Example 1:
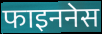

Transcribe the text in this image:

फाइननेस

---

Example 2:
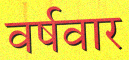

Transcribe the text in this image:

वर्षवार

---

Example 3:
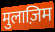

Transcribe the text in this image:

मुलाज़िम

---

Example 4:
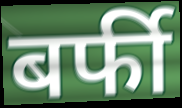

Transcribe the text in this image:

बर्फी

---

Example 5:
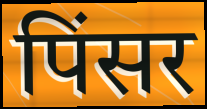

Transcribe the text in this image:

पिंसर